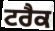
ਟਰੈਕ